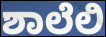
ಶಾಲೆಲಿ